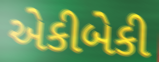
એકીબેકી